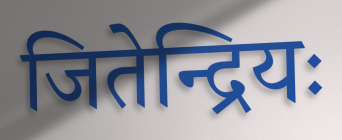
जितेन्द्रियः